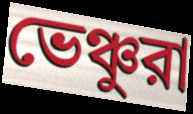
ভেঞ্চুরা